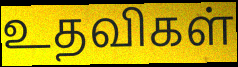
உதவிகள்